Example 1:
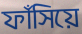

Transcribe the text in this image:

ফাঁসিয়ে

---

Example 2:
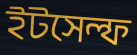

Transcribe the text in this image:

ইটসেল্ফ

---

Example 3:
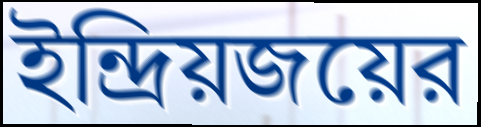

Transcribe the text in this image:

ইন্দ্রিয়জয়ের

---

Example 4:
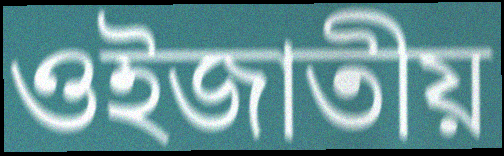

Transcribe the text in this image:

ওইজাতীয়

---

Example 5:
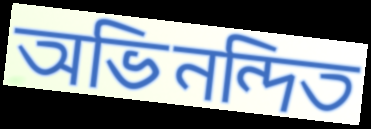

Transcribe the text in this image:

অভিনন্দিত